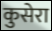
कुसेरा